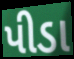
પીડા